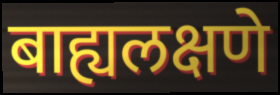
बाह्यलक्षणे